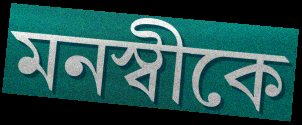
মনস্বীকে